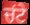
ਚਂਟੇ